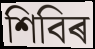
শিবিৰ